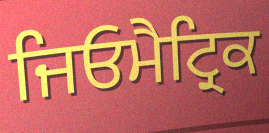
ਜਿਓਮੈਟ੍ਰਿਕ